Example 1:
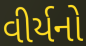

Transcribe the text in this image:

વીર્યનો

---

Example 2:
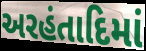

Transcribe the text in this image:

અરહંતાદિમાં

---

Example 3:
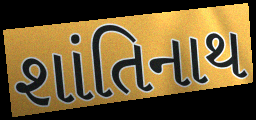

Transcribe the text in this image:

શાંતિનાથ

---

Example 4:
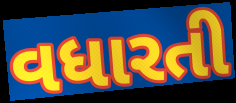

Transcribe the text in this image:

વધારતી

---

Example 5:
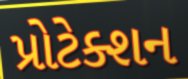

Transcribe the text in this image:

પ્રોટેક્શન